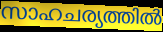
സാഹചര്യത്തിൽ